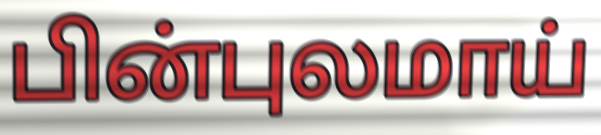
பின்புலமாய்